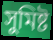
সুমিষ্ট